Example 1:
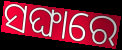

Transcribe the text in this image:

ସଙ୍ଘାରେ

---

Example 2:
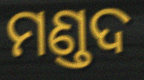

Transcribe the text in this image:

ମଣ୍ଡଦ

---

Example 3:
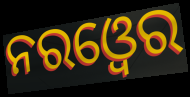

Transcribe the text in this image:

ନରଓ୍ବେର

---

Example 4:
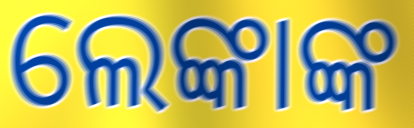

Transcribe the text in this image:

ଲେଙ୍କାଙ୍କ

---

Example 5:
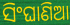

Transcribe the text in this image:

ସିଂଘାଣିଆ